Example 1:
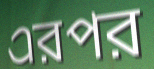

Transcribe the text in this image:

এরপর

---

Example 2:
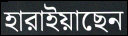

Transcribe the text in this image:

হারাইয়াছেন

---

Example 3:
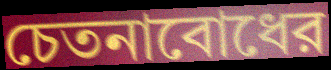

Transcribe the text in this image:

চেতনাবোধের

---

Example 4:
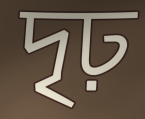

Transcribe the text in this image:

দৃঢ়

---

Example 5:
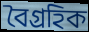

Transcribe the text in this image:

বৈগ্রহিক